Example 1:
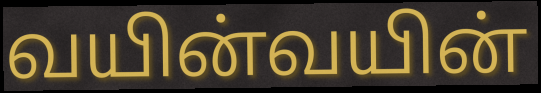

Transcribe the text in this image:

வயின்வயின்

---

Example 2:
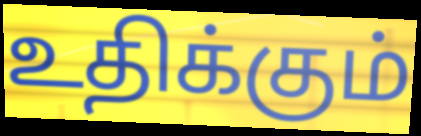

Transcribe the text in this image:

உதிக்கும்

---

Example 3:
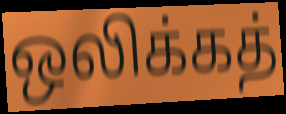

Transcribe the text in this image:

ஒலிக்கத்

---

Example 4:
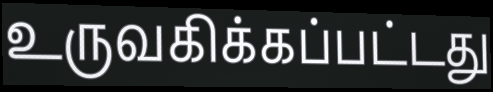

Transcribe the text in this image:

உருவகிக்கப்பட்டது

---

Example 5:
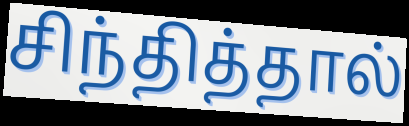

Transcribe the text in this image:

சிந்தித்தால்